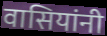
वासियांनी